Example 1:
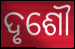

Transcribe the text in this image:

ଦୃଶୌ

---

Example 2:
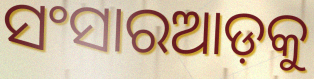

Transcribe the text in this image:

ସଂସାରଆଡ଼କୁ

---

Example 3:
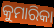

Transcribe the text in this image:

କୁମାରିକା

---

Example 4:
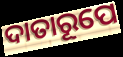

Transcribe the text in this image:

ଦାତାରୂପେ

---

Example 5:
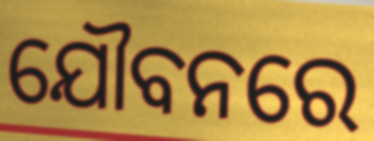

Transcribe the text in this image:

ଯୌବନରେ